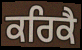
ਕਰਿਕੈ